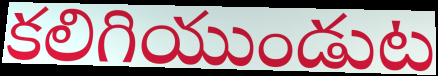
కలిగియుండుట